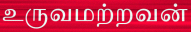
உருவமற்றவன்